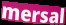
mersal